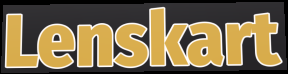
Lenskart